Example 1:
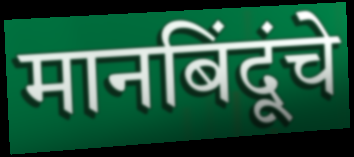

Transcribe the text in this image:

मानबिंदूंचे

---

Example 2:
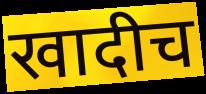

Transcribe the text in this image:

खादीच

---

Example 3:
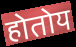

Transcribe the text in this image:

होतोय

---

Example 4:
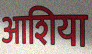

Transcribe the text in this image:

आशिया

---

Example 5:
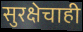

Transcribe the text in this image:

सुरक्षेचाही